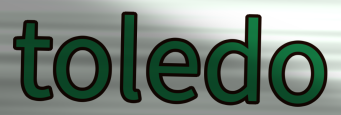
toledo